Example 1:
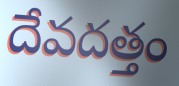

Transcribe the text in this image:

దేవదత్తం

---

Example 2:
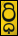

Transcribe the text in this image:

ర్ధి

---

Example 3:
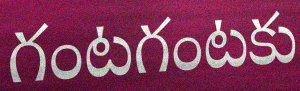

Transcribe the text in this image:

గంటగంటకు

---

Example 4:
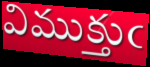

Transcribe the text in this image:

విముక్తుఁ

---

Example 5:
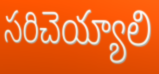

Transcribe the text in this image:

సరిచెయ్యాలి